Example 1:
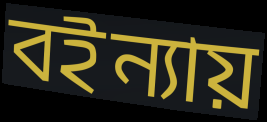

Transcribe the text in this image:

বইন্যায়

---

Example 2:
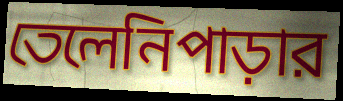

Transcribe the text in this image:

তেলেনিপাড়ার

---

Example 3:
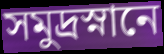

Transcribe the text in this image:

সমুদ্রস্নানে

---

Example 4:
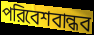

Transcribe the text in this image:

পরিবেশবান্ধব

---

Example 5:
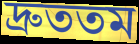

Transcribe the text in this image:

দ্রুততম